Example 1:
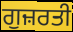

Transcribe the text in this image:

ਗੁਜ਼ਰਤੀ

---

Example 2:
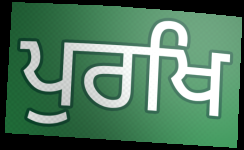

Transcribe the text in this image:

ਪੁਰਖਿ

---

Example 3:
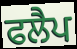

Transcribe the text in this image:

ਫਲੈਪ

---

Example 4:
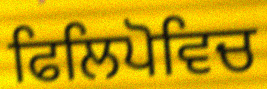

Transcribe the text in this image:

ਫਿਲਿਪੋਵਿਚ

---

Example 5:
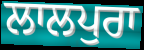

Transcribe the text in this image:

ਲਾਲਪੁਰਾ